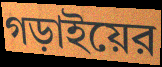
গড়াইয়ের